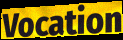
Vocation